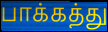
பாக்கத்து